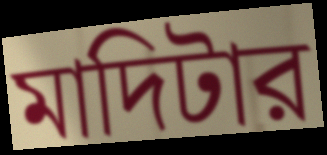
মাদিটার